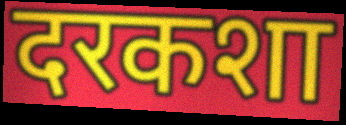
दरकशा